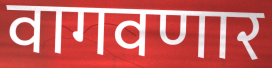
वागवणार